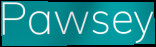
Pawsey